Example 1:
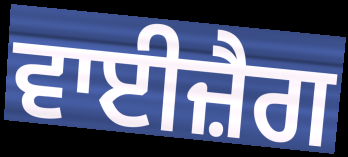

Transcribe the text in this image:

ਵਾਈਜ਼ੈਗ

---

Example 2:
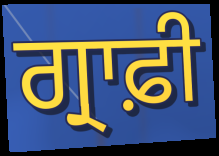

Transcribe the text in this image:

ਗ੍ਰਾਫ਼ੀ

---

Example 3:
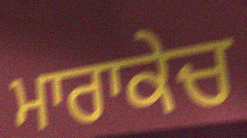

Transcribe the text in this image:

ਮਾਰਾਕੇਚ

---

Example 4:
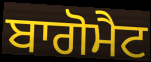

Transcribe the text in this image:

ਬਾਗੋਮੈਟ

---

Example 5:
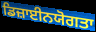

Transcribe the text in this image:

ਡਿਜ਼ਾਈਨਯੋਗਤਾ